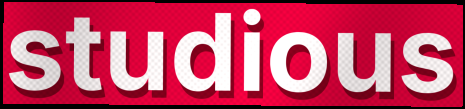
studious